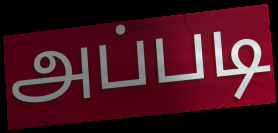
அப்படி